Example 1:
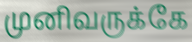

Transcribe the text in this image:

முனிவருக்கே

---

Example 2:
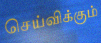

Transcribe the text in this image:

செய்விக்கும்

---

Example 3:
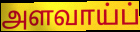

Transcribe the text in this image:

அளவாய்ப்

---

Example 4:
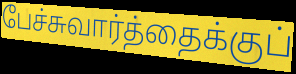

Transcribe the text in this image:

பேச்சுவார்த்தைக்குப்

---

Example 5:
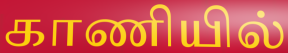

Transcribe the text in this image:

காணியில்